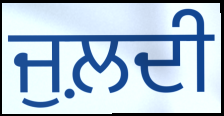
ਜੁਲ਼ਦੀ